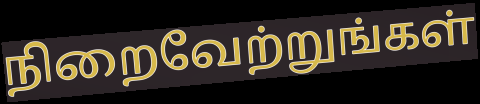
நிறைவேற்றுங்கள்